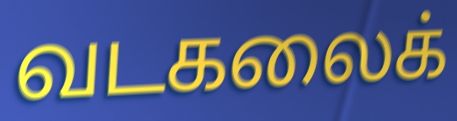
வடகலைக்